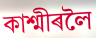
কাশ্মীৰলৈ